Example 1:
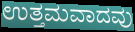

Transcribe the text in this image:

ಉತ್ತಮವಾದವು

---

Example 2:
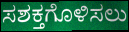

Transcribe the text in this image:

ಸಶಕ್ತಗೊಳಿಸಲು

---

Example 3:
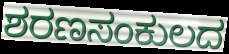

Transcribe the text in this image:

ಶರಣಸಂಕುಲದ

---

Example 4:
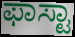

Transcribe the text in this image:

ಫಾಸ್ಟಾ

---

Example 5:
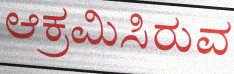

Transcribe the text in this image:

ಆಕ್ರಮಿಸಿರುವ